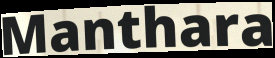
Manthara